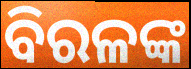
ବିରଳଙ୍କ